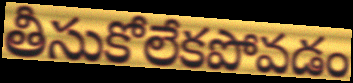
తీసుకోలేకపోవడం